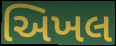
અિખલ